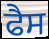
ਫੈਸ